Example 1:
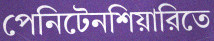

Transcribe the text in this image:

পেনিটেনশিয়ারিতে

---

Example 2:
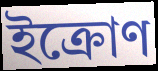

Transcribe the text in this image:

ইক্রোণ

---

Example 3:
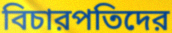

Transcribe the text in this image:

বিচারপতিদের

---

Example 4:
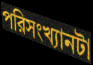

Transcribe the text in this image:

পরিসংখ্যানটা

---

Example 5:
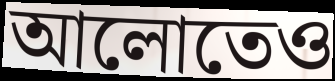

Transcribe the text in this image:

আলোতেও